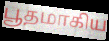
பூதமாகிய